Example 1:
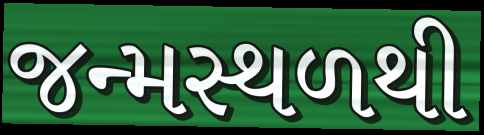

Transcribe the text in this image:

જન્મસ્થળથી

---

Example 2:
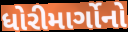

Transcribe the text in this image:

ધોરીમાર્ગોનો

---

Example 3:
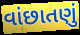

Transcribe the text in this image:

વાંછાતણું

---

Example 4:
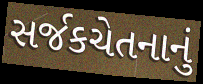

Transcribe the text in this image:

સર્જકચેતનાનું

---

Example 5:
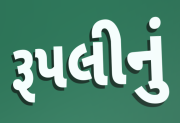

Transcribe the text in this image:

રૂપલીનું